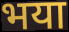
भया